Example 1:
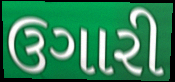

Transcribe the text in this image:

ઉગારી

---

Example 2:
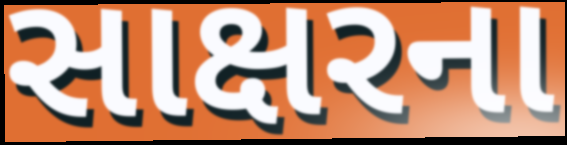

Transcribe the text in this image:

સાક્ષરના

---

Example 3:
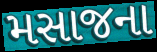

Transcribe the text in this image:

મસાજના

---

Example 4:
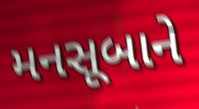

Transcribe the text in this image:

મનસૂબાને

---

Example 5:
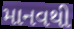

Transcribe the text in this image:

માનવથી